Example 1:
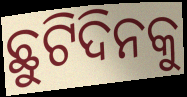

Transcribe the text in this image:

ଛୁଟିଦିନକୁ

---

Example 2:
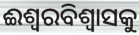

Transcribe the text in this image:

ଈଶ୍ୱରବିଶ୍ଵାସକୁ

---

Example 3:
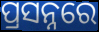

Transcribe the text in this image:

ପ୍ରସନ୍ନରେ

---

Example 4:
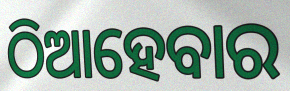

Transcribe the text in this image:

ଠିଆହେବାର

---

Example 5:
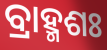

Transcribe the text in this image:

ବ୍ରାହ୍ମଶଃ